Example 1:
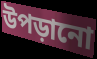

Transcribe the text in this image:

উপড়ানো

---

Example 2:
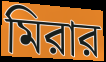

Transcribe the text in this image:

মিরার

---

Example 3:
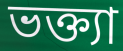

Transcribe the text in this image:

ভক্ত্যা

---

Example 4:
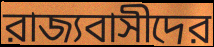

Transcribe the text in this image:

রাজ্যবাসীদের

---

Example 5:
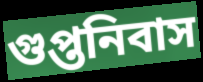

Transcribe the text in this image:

গুপ্তনিবাস